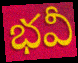
భవీ